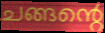
ചങ്ങന്റെ